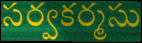
సర్వకర్మసు